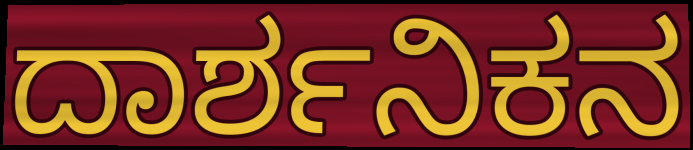
ದಾರ್ಶನಿಕನ